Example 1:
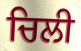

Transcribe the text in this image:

ਚਿਲੀ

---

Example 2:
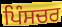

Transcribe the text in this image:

ਪਿੰਸਚਰ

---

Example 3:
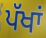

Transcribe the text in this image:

ਪੱਖਾਂ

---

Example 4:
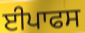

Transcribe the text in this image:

ਈਪਾਫਸ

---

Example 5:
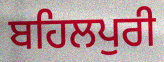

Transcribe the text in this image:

ਬਹਿਲਪੁਰੀ